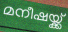
മനീഷയ്ക്ക്